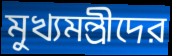
মুখ্যমন্ত্রীদের